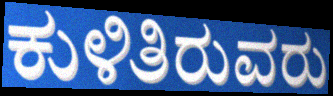
ಕುಳಿತಿರುವರು